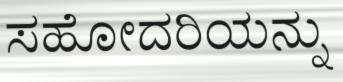
ಸಹೋದರಿಯನ್ನು